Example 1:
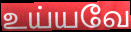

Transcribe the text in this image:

உய்யவே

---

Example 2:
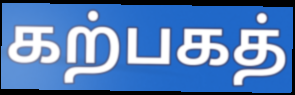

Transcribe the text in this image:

கற்பகத்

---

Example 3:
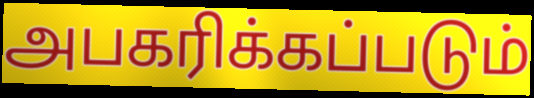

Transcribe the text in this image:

அபகரிக்கப்படும்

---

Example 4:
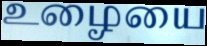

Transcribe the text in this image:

உழையை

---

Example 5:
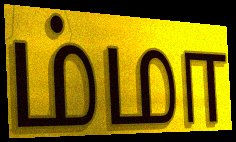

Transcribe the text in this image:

ம்மா